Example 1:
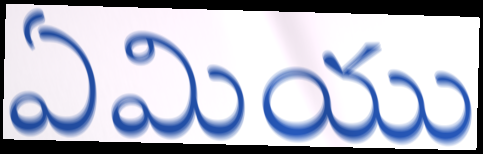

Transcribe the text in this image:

ఏమియు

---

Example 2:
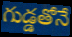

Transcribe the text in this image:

గుడ్డతోనే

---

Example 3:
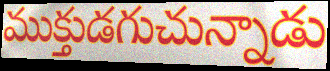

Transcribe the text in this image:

ముక్తుడగుచున్నాడు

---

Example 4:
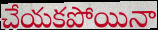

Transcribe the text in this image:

చేయకపోయినా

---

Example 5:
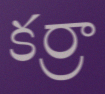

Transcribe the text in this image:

కర్రా